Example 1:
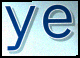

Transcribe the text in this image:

ye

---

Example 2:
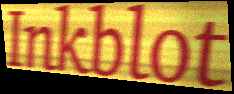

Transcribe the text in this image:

Inkblot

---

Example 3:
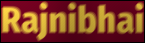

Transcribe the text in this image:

Rajnibhai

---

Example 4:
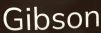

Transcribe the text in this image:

Gibson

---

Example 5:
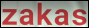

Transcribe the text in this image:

zakas